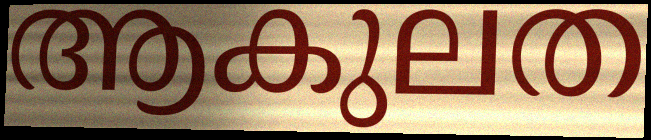
ആകുലത